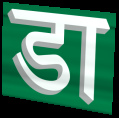
डा